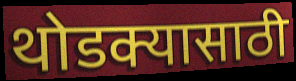
थोडक्यासाठी